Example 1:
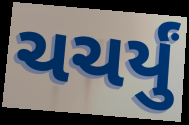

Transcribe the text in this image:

ચચર્યું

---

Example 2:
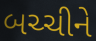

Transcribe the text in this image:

બચ્ચીને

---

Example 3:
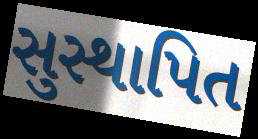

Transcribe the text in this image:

સુસ્થાપિત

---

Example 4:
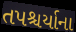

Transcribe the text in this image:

તપશ્ચર્યાના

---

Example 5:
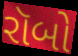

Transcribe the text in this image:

રૉબો